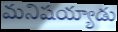
మనిషయ్యాడు